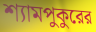
শ্যামপুকুরের